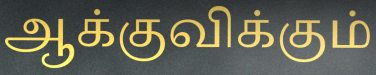
ஆக்குவிக்கும்